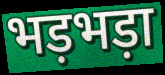
भड़भड़ा